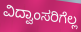
ವಿದ್ವಾಂಸರಿಗೆಲ್ಲ